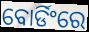
ବୋର୍ଡିଂରେ